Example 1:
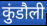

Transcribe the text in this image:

कुंडौली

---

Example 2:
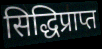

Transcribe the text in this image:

सिद्धिप्राप्त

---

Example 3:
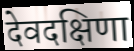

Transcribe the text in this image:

देवदक्षिणा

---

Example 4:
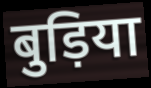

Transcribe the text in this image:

बुड़िया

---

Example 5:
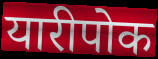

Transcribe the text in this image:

यारीपोक